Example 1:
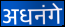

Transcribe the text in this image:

अधनंगे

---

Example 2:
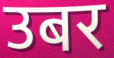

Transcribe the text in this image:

उबर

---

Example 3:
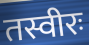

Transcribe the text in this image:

तस्वीरः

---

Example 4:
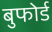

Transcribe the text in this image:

बुफोर्ड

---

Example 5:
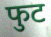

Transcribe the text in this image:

फुट